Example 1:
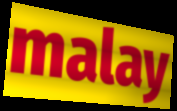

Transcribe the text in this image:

malay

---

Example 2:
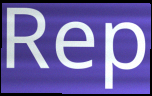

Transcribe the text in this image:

Rep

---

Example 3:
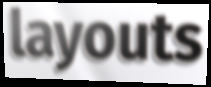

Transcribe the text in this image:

layouts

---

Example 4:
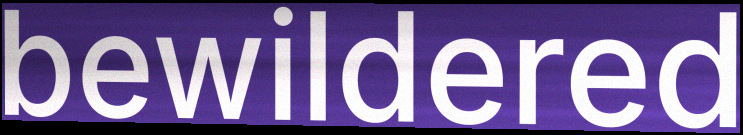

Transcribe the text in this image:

bewildered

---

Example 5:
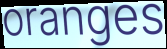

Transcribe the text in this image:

oranges